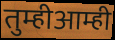
तुम्हीआम्ही